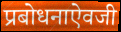
प्रबोधनाऐवजी